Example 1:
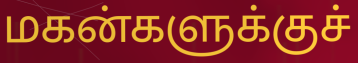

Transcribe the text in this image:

மகன்களுக்குச்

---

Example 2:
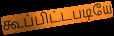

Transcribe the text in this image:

கூப்பிட்டபடியே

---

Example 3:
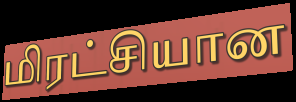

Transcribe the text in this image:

மிரட்சியான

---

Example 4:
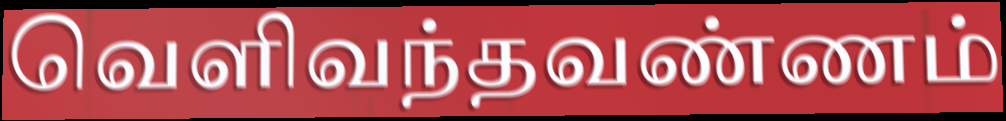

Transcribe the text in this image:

வெளிவந்தவண்ணம்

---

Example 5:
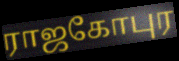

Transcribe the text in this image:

ராஜகோபுர